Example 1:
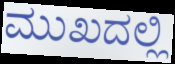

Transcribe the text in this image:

ಮುಖದಲ್ಲಿ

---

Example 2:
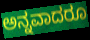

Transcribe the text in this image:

ಅನ್ನವಾದರೂ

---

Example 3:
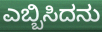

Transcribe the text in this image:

ಎಬ್ಬಿಸಿದನು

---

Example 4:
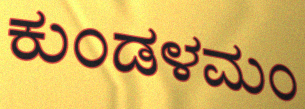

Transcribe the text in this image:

ಕುಂಡಳಮಂ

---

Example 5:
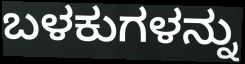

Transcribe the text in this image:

ಬಳಕುಗಳನ್ನು